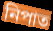
নিপাত